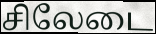
சிலேடை